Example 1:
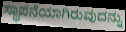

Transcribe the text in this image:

ಸ್ಥಾಪನೆಯಾಗಿರುವುದನ್ನು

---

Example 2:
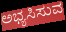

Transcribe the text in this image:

ಅಭ್ಯಸಿಸುವ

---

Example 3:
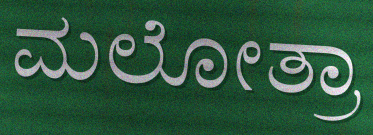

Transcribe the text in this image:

ಮಲೋತ್ರಾ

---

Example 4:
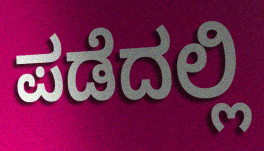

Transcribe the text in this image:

ಪಡೆದಲ್ಲಿ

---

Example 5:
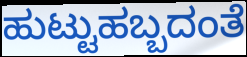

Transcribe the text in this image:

ಹುಟ್ಟುಹಬ್ಬದಂತೆ